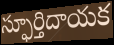
స్ఫూర్తిదాయక